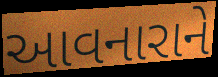
આવનારાને